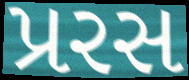
પ્રરસ